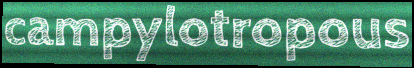
campylotropous